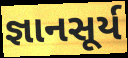
જ્ઞાનસૂર્ય